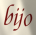
bijo